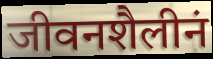
जीवनशैलीनं